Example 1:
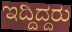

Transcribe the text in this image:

ಇದ್ದಿದ್ದರು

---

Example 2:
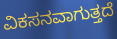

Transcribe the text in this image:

ವಿಕಸನವಾಗುತ್ತದೆ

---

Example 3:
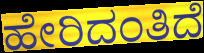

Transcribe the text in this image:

ಹೇರಿದಂತಿದೆ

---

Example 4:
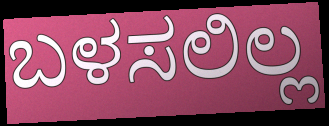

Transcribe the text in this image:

ಬಳಸಲಿಲ್ಲ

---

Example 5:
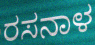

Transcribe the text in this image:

ರಸನಾಳ